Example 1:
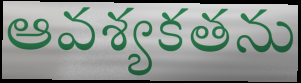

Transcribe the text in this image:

ఆవశ్యకతను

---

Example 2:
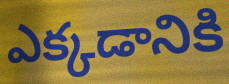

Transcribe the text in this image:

ఎక్కడానికి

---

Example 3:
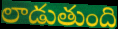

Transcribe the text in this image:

లాడుతుంది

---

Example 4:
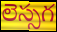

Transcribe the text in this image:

లెస్సగ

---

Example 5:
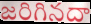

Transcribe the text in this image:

జరిగినదా